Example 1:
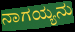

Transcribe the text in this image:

ನಾಗಯ್ಯನು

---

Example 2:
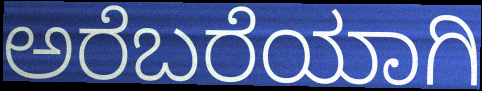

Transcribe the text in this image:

ಅರೆಬರೆಯಾಗಿ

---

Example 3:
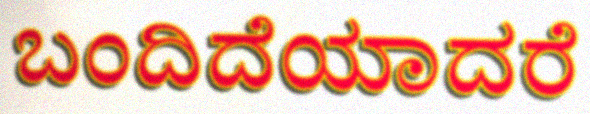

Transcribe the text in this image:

ಬಂದಿದೆಯಾದರೆ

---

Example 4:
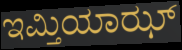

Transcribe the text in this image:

ಇಮ್ತಿಯಾಝ್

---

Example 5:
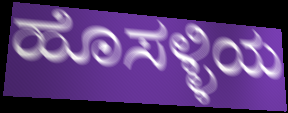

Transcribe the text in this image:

ಹೊಸಳ್ಳಿಯ